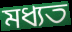
মধ্যত